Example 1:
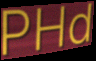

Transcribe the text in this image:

PHd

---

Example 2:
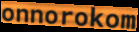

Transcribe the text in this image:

onnorokom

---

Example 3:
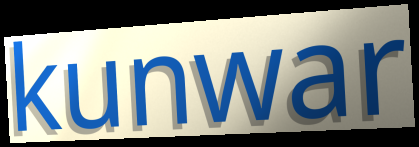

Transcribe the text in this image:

kunwar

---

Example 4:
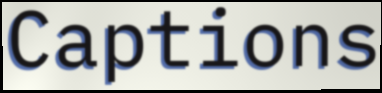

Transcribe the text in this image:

Captions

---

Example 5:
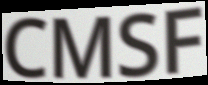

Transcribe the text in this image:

CMSF